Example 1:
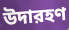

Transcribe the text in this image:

উদারহণ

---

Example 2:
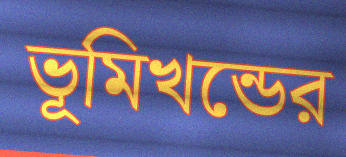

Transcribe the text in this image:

ভূমিখন্ডের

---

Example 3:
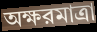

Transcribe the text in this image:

অক্ষরমাত্রা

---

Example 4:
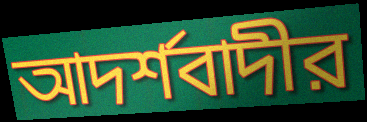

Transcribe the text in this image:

আদর্শবাদীর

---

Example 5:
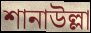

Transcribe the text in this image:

শানাউল্লা